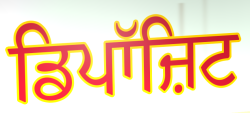
ਡਿਪਾੱਜ਼ਿਟ